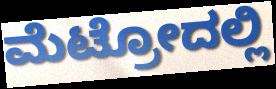
ಮೆಟ್ರೋದಲ್ಲಿ